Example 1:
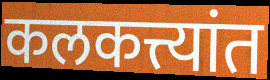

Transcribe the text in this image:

कलकत्त्यांत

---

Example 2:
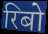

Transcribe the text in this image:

रिबो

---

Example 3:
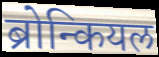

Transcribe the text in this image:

ब्रोन्कियल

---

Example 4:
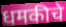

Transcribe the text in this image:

धमकीचे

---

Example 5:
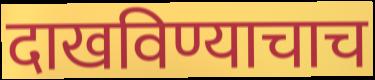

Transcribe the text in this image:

दाखविण्याचाच